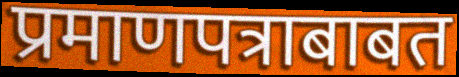
प्रमाणपत्राबाबत